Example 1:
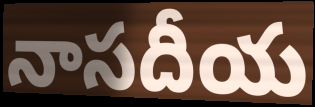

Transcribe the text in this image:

నాసదీయ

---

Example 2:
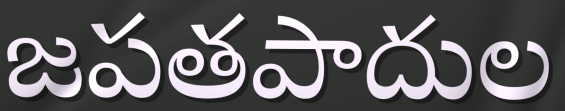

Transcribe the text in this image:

జపతపాదుల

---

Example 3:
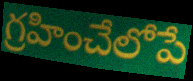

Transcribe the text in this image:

గ్రహించేలోపే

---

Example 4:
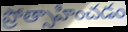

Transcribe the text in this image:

ప్రోత్సాహించడం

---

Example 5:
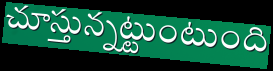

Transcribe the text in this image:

చూస్తున్నట్టుంటుంది